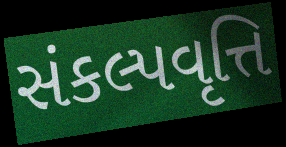
સંકલ્પવૃત્તિ